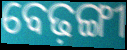
ବେଢ଼ଙ୍ଗୀ